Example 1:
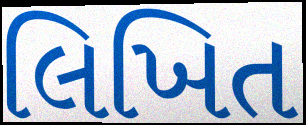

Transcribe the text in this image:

લિખિત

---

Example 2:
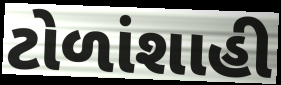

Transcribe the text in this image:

ટોળાંશાહી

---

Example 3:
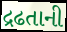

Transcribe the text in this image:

દ્રઢતાની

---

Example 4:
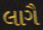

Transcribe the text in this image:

લાગૈ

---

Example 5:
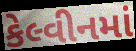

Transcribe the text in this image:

કેલ્વીનમાં